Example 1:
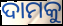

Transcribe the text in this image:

ଦାମକୁ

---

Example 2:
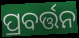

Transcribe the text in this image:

ପ୍ରବର୍ତ୍ତନ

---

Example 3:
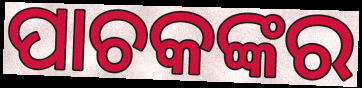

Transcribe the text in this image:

ପାଚକଙ୍କର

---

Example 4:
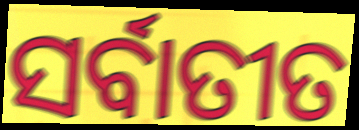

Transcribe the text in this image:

ସର୍ବାତୀତ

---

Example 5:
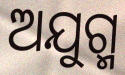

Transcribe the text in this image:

ଅଯୁଗ୍ମ